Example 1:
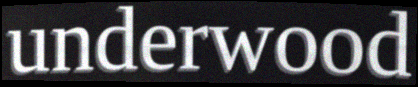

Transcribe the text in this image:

underwood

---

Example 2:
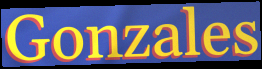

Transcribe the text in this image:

Gonzales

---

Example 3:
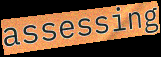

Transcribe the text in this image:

assessing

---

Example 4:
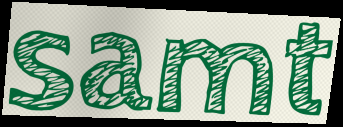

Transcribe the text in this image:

samt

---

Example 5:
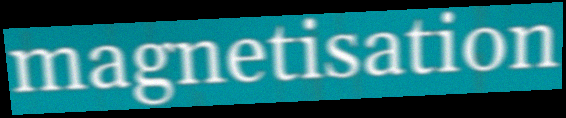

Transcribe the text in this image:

magnetisation